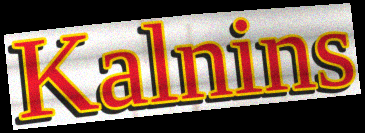
Kalnins